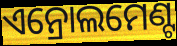
ଏନ୍ରୋଲମେଣ୍ଟ